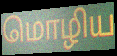
மொழிய